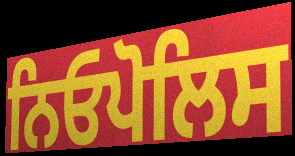
ਨਿਓਪੋਲਿਸ